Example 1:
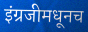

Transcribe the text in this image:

इंग्रजीमधूनच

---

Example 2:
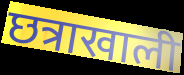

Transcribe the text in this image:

छत्राखाली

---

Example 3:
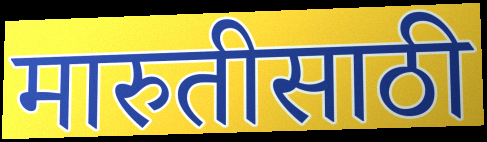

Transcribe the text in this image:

मारुतीसाठी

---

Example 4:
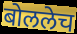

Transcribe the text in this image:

बोललेच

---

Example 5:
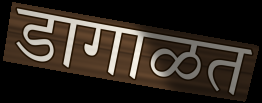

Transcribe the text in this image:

डागाळत